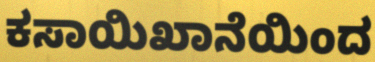
ಕಸಾಯಿಖಾನೆಯಿಂದ